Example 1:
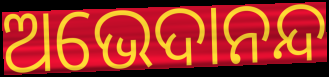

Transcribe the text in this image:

ଅଭେଦାନନ୍ଦ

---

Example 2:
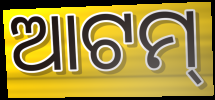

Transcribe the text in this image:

ଆଟମ୍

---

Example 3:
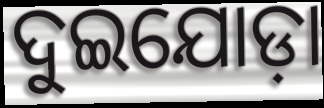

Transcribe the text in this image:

ଦୁଇଯୋଡ଼ା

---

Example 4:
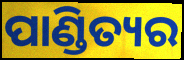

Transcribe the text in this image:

ପାଣ୍ଡିତ୍ୟର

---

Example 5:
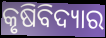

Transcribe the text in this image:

କୃଷିବିଦ୍ୟାର